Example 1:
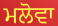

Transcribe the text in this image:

ਮਲੋਵਾ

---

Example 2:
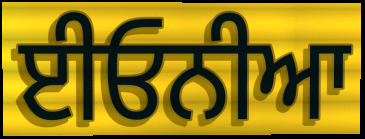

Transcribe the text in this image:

ਈਓਨੀਆ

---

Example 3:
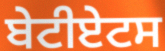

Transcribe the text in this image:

ਬੇਟੀਏਟਸ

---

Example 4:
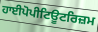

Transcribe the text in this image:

ਹਾਈਪੋਪੀਟਿਊਟਰਿਜ਼ਮ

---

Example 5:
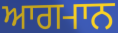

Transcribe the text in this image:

ਆਗ੍ਮਾਨ